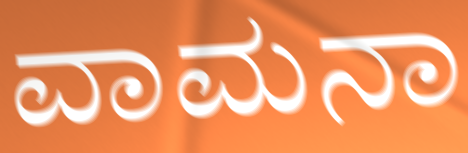
ವಾಮನಾ